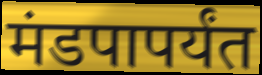
मंडपापर्यंत